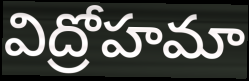
విద్రోహమా